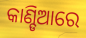
କାଣ୍ଡିଆରେ